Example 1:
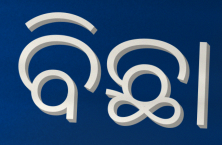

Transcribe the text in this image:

ବିଛା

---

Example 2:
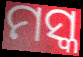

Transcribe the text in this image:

ମସ୍କ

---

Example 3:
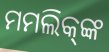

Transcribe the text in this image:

ମମଲିକ୍‌ଙ୍କ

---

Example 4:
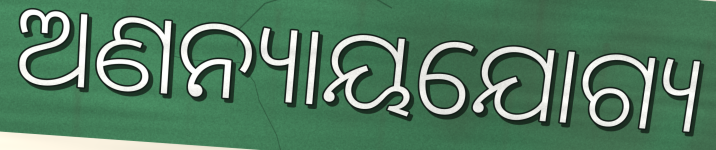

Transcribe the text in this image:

ଅଣନ୍ୟାୟଯୋଗ୍ୟ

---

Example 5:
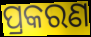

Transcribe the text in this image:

ପ୍ରକରଣ